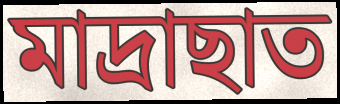
মাদ্ৰাছাত